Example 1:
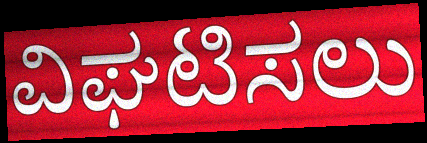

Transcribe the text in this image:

ವಿಘಟಿಸಲು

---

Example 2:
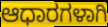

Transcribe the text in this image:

ಆಧಾರಗಳಾಗಿ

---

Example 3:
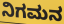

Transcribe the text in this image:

ನಿಗಮನ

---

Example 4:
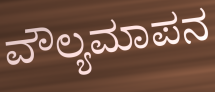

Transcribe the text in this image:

ವೌಲ್ಯಮಾಪನ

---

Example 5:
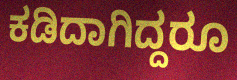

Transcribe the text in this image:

ಕಡಿದಾಗಿದ್ದರೂ